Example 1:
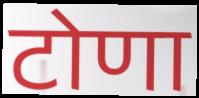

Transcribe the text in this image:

टोणा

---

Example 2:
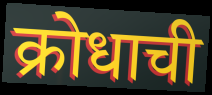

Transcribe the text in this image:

क्रोधाची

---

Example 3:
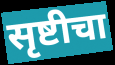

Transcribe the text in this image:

सृष्टीचा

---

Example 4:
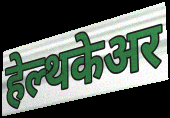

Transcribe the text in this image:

हेल्थकेअर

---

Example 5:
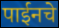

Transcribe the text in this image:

पाईनचे